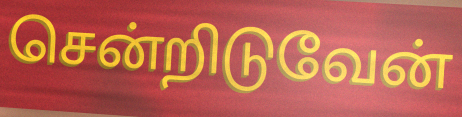
சென்றிடுவேன்